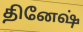
தினேஷ்